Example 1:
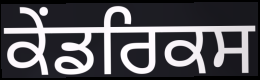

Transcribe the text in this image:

ਕੇਂਡਰਿਕਸ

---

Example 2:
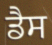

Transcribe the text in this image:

ਡੈਸ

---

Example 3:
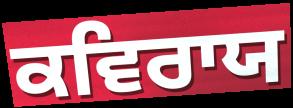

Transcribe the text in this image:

ਕਵਿਰਾਯ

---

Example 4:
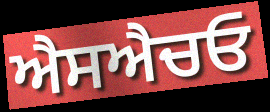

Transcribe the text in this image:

ਐਸਐਚਓ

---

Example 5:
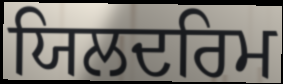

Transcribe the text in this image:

ਯਿਲਦਰਿਮ